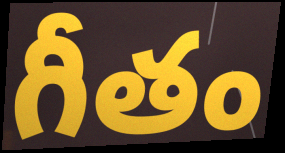
గీతం